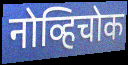
नोव्हिचोक